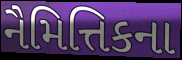
નૈમિત્તિકના